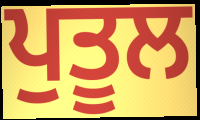
ਪੁਤੂਲ